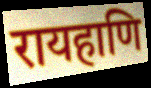
रायहाणि